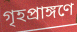
গৃহপ্রাঙ্গণে